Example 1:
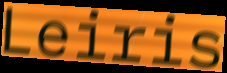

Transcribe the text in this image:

Leiris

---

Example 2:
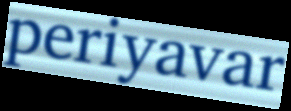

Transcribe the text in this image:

periyavar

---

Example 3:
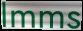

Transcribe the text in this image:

Imms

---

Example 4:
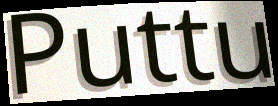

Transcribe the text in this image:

Puttu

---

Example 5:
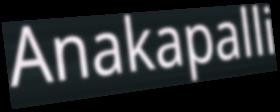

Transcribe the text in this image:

Anakapalli